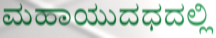
ಮಹಾಯುದಧದಲ್ಲಿ